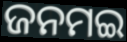
ଜନମଇ